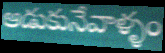
ఆడుకునేవాళ్ళం